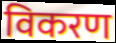
विकरण